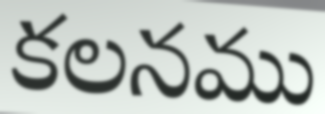
కలనము